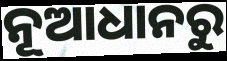
ନୂଆଧାନରୁ